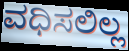
ವಧಿಸಲಿಲ್ಲ